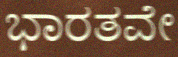
ಭಾರತವೇ